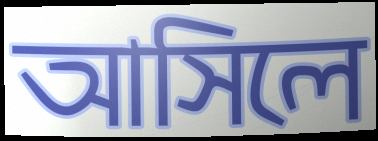
আসিলে